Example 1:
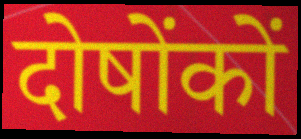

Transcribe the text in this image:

दोषोंकों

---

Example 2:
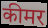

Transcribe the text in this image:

कीमर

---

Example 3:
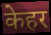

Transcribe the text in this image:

केहर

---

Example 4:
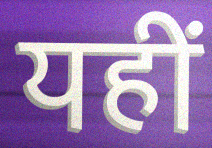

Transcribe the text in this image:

यहीं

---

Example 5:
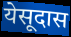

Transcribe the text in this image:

येसूदास